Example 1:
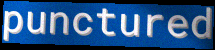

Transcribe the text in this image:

punctured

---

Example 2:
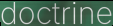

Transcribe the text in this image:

doctrine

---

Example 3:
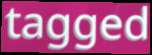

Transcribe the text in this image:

tagged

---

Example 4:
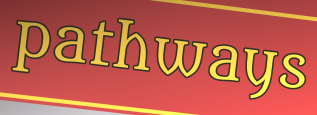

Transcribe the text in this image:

pathways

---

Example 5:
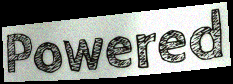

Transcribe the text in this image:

Powered